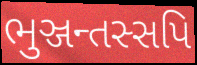
ભુઞ્જન્તસ્સપિ